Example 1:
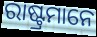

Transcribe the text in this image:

ରାଷ୍ଟ୍ରମାନେ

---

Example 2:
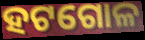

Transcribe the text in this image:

ହଟଗୋଳ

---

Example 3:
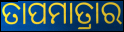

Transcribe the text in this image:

ତାପମାତ୍ରାର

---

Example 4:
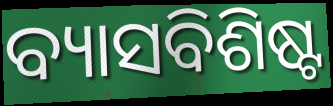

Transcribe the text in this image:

ବ୍ୟାସବିଶିଷ୍ଟ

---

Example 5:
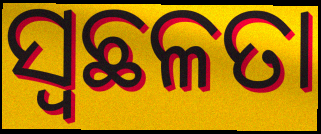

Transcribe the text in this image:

ସ୍ଵଛଳତା